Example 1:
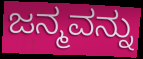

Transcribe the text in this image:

ಜನ್ಮವನ್ನು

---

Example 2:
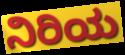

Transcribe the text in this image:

ನಿರಿಯ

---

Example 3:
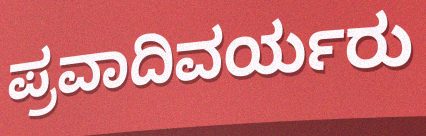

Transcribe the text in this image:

ಪ್ರವಾದಿವರ್ಯರು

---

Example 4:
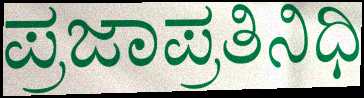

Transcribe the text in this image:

ಪ್ರಜಾಪ್ರತಿನಿಧಿ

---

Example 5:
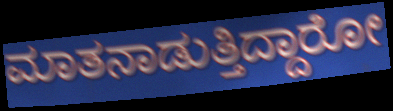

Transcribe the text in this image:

ಮಾತನಾಡುತ್ತಿದ್ದಾರೋ